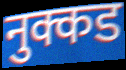
नुक्कड